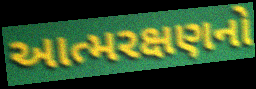
આત્મરક્ષણનો